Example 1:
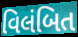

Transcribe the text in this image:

વિલંબિત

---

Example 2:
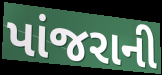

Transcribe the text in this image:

પાંજરાની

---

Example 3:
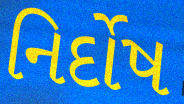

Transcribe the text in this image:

નિર્દોષ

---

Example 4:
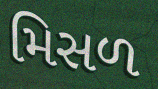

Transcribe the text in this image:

મિસળ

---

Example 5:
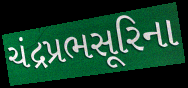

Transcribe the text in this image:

ચંદ્રપ્રભસૂરિના